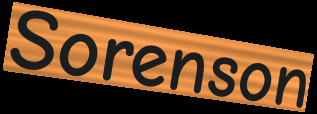
Sorenson